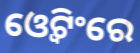
ଓ୍ୱେଟିଂରେ